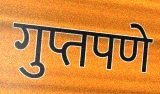
गुप्तपणे